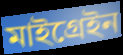
মাইগ্ৰেইন